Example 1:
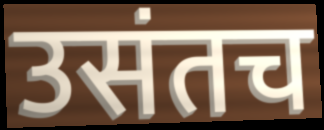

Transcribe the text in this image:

उसंतच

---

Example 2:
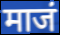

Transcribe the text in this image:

माजं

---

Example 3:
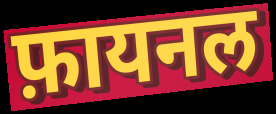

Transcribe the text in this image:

फ़ायनल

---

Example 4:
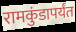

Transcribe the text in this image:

रामकुंडापर्यंत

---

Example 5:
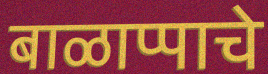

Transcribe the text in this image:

बाळाप्पाचे